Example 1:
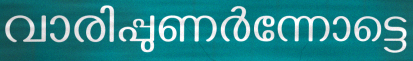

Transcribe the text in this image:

വാരിപ്പുണർന്നോട്ടെ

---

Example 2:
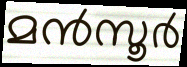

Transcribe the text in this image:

മൻസൂർ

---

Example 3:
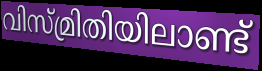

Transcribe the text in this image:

വിസ്മ്രിതിയിലാണ്ട്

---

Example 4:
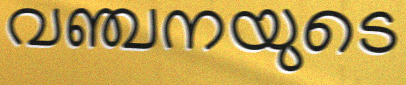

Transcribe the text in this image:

വഞ്ചനയുടെ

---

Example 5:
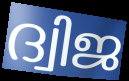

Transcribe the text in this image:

ദ്വിജ